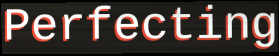
Perfecting